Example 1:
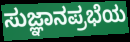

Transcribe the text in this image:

ಸುಜ್ಞಾನಪ್ರಭೆಯ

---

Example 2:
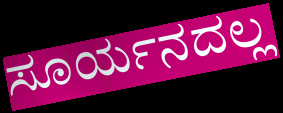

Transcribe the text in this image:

ಸೂರ್ಯನದಲ್ಲ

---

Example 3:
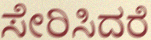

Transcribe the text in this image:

ಸೇರಿಸಿದರೆ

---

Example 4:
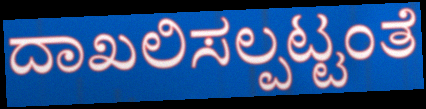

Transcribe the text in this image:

ದಾಖಲಿಸಲ್ಪಟ್ಟಂತೆ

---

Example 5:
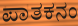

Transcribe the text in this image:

ಪಾತಕನಂ